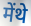
मेंथे